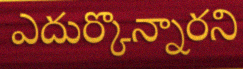
ఎదుర్కొన్నారని